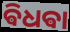
ଵିଧଵା